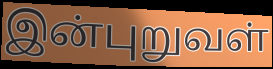
இன்புறுவள்